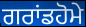
ਗਰਾਂਡਹੋਮੇ